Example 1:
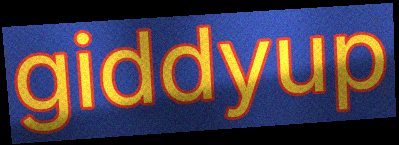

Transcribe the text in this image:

giddyup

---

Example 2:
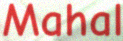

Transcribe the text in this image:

Mahal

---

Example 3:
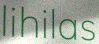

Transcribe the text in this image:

lihilas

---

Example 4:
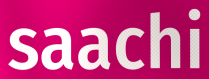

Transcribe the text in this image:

saachi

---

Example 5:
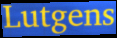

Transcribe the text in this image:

Lutgens